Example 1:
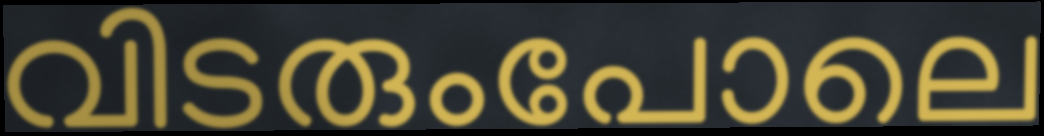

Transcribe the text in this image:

വിടരുംപോലെ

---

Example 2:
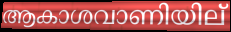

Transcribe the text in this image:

ആകാശവാണിയില്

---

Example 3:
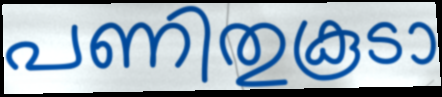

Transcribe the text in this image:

പണിതുകൂടാ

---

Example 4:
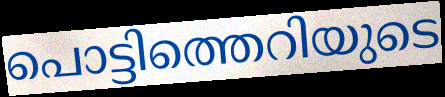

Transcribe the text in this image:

പൊട്ടിത്തെറിയുടെ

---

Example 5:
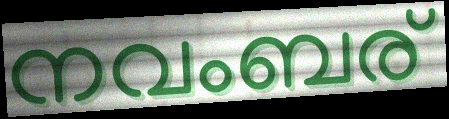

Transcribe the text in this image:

നവംബര്